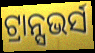
ଟ୍ରାନ୍ସଭର୍ସ